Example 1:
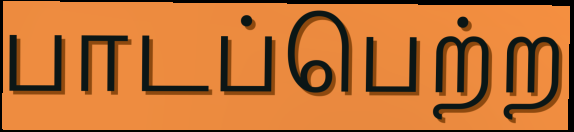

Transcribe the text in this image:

பாடப்பெற்ற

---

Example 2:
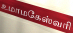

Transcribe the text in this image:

உமாமகேஸ்வரி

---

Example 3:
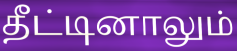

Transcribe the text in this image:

தீட்டினாலும்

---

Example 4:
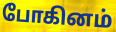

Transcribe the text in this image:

போகினம்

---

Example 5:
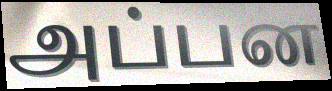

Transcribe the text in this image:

அப்பன